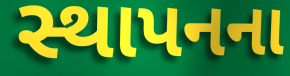
સ્થાપનના